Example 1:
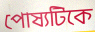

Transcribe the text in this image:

পোষ্যটিকে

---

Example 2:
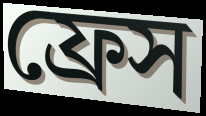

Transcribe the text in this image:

ফ্রেস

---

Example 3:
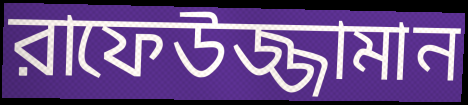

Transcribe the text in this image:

রাফেউজ্জামান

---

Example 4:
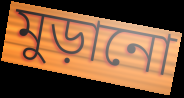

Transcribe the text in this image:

মুড়ানো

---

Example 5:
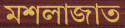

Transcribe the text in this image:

মশলাজাত